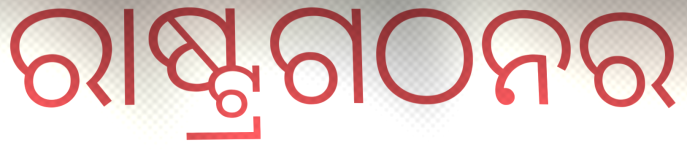
ରାଷ୍ଟ୍ରଗଠନର